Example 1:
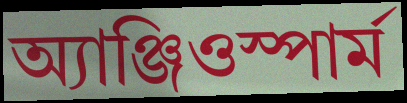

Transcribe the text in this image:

অ্যাঞ্জিওস্পার্ম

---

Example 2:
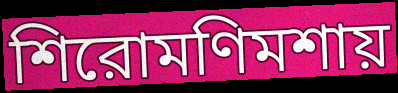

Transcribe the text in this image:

শিরোমণিমশায়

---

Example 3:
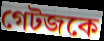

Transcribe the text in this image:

গেটজকে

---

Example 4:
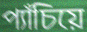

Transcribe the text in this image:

প্যাঁচিয়ে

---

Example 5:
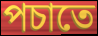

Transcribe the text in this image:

পচাতে